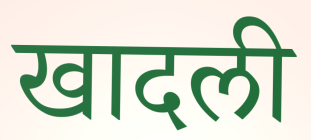
खादली